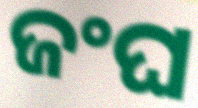
ଜଂଘ